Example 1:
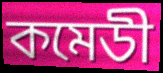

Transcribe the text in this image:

কমেডী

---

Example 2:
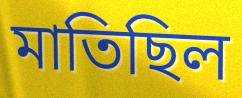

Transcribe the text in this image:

মাতিছিল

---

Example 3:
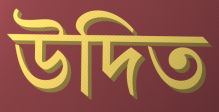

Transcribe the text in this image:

উদিত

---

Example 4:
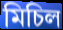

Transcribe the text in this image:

মিচিল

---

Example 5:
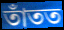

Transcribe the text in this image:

তাঁতত